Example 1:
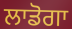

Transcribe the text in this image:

ਲਾਡੋਗਾ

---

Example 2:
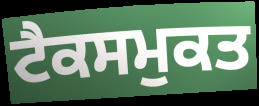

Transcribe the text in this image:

ਟੈਕਸਮੁਕਤ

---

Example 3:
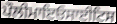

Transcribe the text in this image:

ਪੌਲੀਮਾਇਓਸਾਈਟਿਸ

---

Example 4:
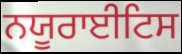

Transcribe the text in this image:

ਨਯੂਰਾਈਟਿਸ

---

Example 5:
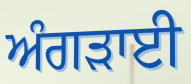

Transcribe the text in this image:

ਅੰਗੜਾਈ